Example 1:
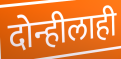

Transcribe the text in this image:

दोन्हीलाही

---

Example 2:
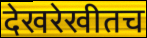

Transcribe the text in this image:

देखरेखीतच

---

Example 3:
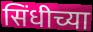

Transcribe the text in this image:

सिंधीच्या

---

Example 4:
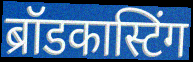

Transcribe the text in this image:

ब्रॉडकास्टिंग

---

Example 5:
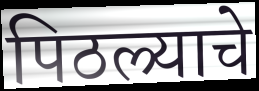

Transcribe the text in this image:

पिठल्याचे